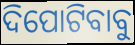
ଦିପୋଟିବାବୁ